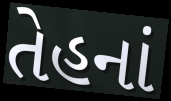
તેહનાં